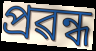
প্ৰৱন্ধ